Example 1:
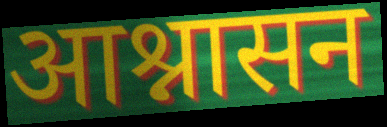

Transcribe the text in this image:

आश्नासन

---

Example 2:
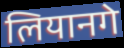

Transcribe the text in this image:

लियानगे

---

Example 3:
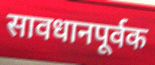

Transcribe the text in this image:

सावधानपूर्वक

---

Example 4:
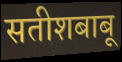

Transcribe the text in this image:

सतीशबाबू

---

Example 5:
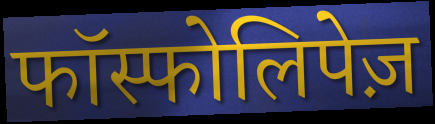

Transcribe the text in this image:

फॉस्फोलिपेज़